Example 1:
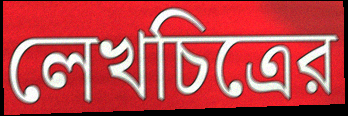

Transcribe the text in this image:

লেখচিত্রের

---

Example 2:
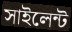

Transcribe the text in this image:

সাইলেন্ট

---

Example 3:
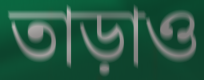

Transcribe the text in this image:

তাড়াও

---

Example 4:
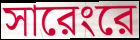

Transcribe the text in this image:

সারেংরে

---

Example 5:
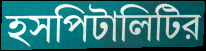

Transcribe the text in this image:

হসপিটালিটির